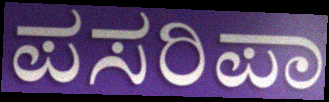
ಪಸರಿಪಾ